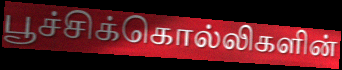
பூச்சிக்கொல்லிகளின்